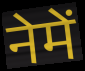
नेमें